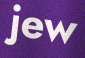
jew